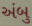
અંબુ